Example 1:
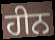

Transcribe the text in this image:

ਹੀਨ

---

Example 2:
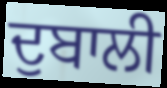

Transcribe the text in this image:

ਦੁਬਾਲੀ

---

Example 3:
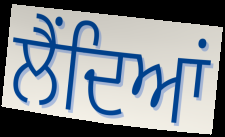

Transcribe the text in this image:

ਲੈਂਦਿਆਂ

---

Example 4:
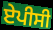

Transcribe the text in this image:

ਏਪੀਸੀ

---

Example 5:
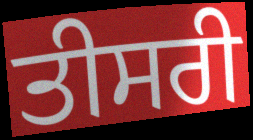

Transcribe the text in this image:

ਤੀਸਰੀ